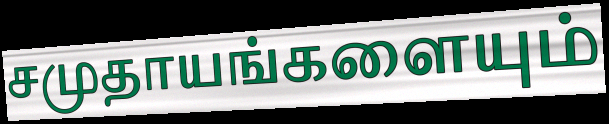
சமுதாயங்களையும்